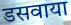
डसवाया